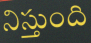
నిస్తుంది